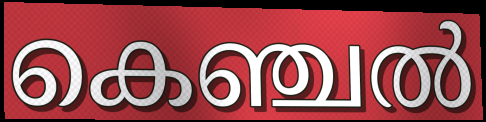
കെഞ്ചൽ